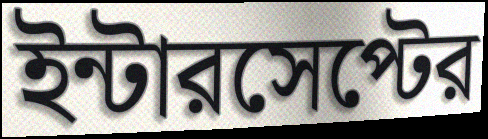
ইন্টারসেপ্টের